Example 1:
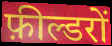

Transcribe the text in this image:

फ़ील्डरों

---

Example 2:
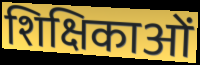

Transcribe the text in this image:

शिक्षिकाओं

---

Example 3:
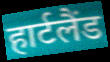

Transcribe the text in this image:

हार्टलैंड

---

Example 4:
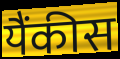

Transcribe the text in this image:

यैंकीस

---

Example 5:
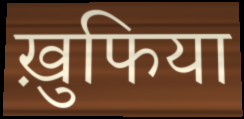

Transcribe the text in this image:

ख़ुफिया